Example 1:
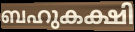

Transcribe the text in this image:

ബഹുകക്ഷി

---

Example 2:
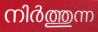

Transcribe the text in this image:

നിർത്തുന്ന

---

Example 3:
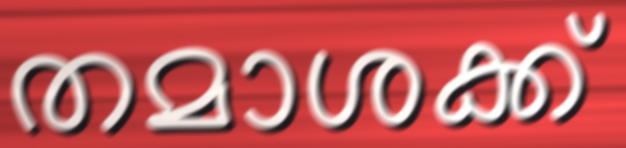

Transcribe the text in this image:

തമാശക്ക്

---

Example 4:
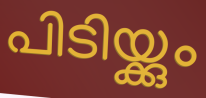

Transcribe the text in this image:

പിടിയ്ക്കും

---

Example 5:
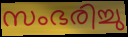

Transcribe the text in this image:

സംഭരിച്ചു